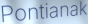
Pontianak